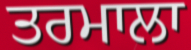
ਤਰਮਾਲਾ